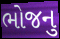
ભોજનુ